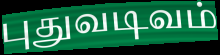
புதுவடிவம்